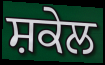
ਸ਼ਕੇਲ